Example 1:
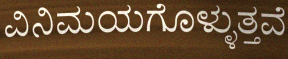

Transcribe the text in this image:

ವಿನಿಮಯಗೊಳ್ಳುತ್ತವೆ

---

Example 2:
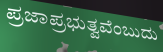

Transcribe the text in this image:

ಪ್ರಜಾಪ್ರಭುತ್ವವೆಂಬುದು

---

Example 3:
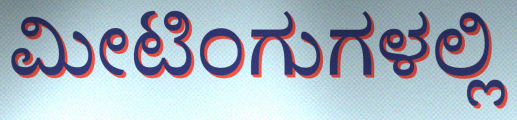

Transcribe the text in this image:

ಮೀಟಿಂಗುಗಳಲ್ಲಿ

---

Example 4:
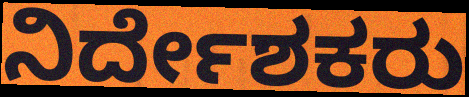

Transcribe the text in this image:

ನಿರ್ದೇಶಕರು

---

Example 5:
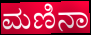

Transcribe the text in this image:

ಮಣಿನಾ